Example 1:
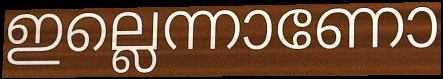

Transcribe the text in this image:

ഇല്ലെന്നാണോ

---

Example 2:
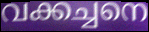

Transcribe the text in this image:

വക്കച്ചനെ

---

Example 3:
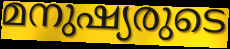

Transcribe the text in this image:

മനുഷ്യരുടെ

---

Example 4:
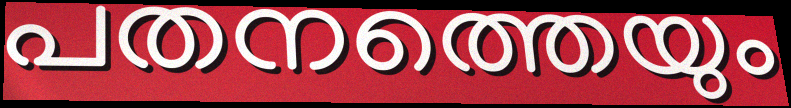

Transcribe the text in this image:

പതനത്തെയും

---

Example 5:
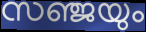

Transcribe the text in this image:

സഞ്ജയും